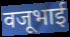
वजूभाई